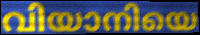
വിയാനിയെ